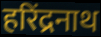
हरिंद्रनाथ